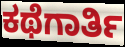
ಕಥೆಗಾರ್ತಿ